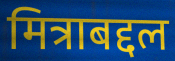
मित्राबद्दल